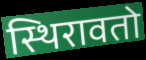
स्थिरावतो